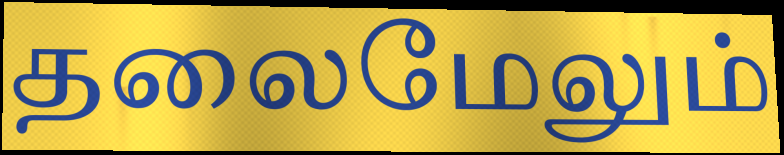
தலைமேலும்